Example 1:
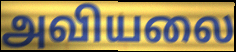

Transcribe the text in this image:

அவியலை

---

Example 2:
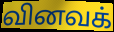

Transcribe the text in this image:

வினவக்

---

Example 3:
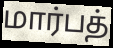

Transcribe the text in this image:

மார்பத்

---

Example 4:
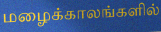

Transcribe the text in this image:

மழைக்காலங்களில்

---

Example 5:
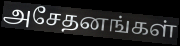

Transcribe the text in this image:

அசேதனங்கள்